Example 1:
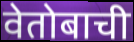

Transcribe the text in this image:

वेतोबाची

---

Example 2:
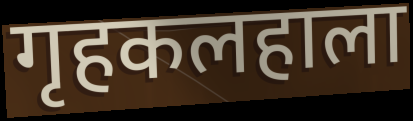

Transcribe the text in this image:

गृहकलहाला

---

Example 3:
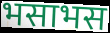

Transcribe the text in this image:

भसाभस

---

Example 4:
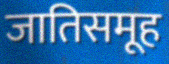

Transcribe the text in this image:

जातिसमूह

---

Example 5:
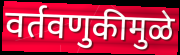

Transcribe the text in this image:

वर्तवणुकीमुळे